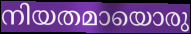
നിയതമായൊരു